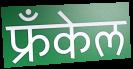
फ्रँकेल